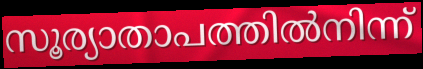
സൂര്യാതാപത്തിൽനിന്ന്